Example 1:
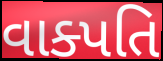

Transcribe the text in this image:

વાક્પતિ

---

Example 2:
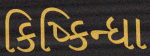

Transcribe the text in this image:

કિષ્કિન્ધા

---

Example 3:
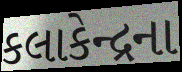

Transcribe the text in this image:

કલાકેન્દ્રના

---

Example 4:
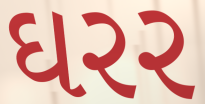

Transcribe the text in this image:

ઘરર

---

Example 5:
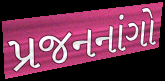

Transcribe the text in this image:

પ્રજનનાંગો